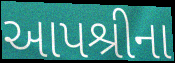
આપશ્રીના